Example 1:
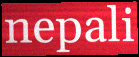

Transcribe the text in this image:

nepali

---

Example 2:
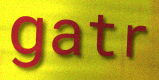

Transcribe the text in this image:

gatr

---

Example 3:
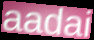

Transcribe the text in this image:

aadai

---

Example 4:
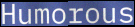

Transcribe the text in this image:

Humorous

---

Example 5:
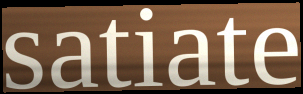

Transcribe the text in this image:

satiate